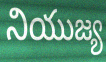
నియుజ్య